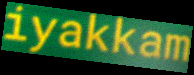
iyakkam